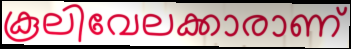
കൂലിവേലക്കാരാണ്